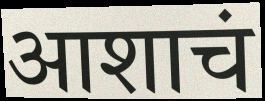
आशाचं